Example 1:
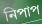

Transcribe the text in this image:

নিপাপ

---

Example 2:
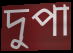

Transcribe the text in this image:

দুপা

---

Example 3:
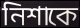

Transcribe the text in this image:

নিশাকে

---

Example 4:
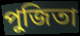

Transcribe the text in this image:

পুজিতা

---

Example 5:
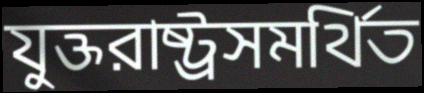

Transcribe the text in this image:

যুক্তরাষ্ট্রসমর্থিত